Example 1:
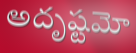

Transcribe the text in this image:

అదృష్టమో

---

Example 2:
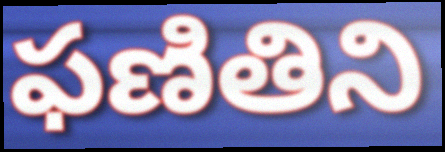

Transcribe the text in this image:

ఫణితిని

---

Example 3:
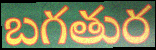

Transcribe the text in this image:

బగతుర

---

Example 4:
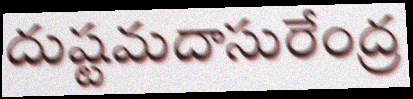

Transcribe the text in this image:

దుష్టమదాసురేంద్ర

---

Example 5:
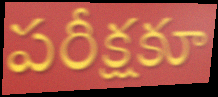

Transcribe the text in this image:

పరీక్షకూ